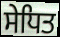
ਸੇਧਿਤ